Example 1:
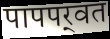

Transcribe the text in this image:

पापपर्वत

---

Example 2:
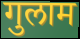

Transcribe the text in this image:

गुलाम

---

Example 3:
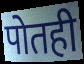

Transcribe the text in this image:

पोतही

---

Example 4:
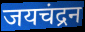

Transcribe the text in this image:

जयचंद्रन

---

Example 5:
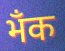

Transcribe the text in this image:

भँक